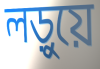
লড়ুয়ে